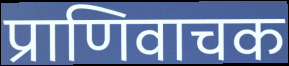
प्राणिवाचक